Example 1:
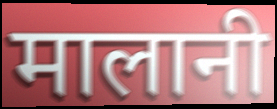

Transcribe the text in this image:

मालानी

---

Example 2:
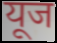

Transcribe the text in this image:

यूज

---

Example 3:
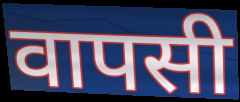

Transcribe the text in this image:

वापसी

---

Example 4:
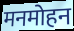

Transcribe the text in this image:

मनमोहन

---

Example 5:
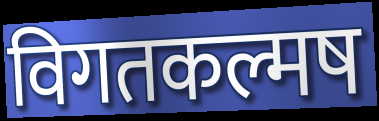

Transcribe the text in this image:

विगतकल्मष